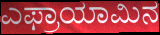
ಎಫ್ರಾಯಾಮಿನ